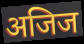
अजिज